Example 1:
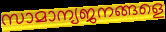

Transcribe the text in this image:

സാമാന്യജനങ്ങളെ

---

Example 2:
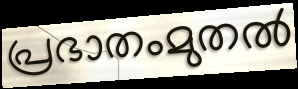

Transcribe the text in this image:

പ്രഭാതംമുതൽ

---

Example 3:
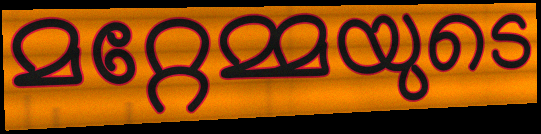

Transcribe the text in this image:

മറ്റേമ്മയുടെ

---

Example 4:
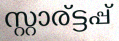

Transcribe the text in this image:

സ്റ്റാര്ട്ടപ്പ്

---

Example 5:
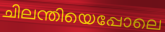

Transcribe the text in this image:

ചിലന്തിയെപ്പോലെ